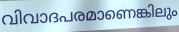
വിവാദപരമാണെങ്കിലും